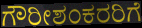
ಗೌರೀಶಂಕರರಿಗೆ